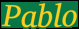
Pablo